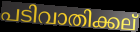
പടിവാതിക്കല്